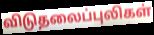
விடுதலைப்புலிகள்